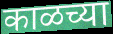
काळच्या